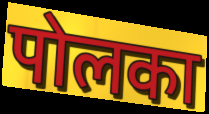
पोलका